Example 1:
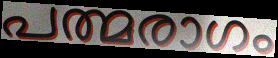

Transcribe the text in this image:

പത്മരാഗം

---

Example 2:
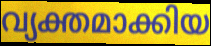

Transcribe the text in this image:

വ്യക്തമാക്കിയ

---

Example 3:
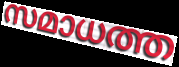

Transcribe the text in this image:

സമാധത്ത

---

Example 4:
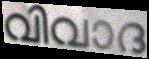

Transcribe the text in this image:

വിവാദ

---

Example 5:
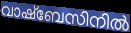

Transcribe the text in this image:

വാഷ്ബേസിനിൽ